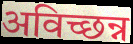
अविच्छन्न